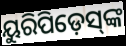
ୟୁରିପିଡ଼େସ୍‌ଙ୍କ